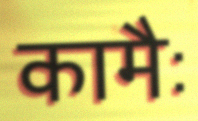
कामैः